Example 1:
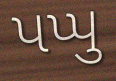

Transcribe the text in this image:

પપ્પુ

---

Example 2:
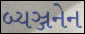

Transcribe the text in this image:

બ્યઞ્જનેન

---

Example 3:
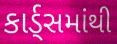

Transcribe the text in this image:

કાર્ડ્સમાંથી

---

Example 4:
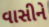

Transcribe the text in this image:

વાસીને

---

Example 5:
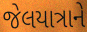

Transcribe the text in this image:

જેલયાત્રાને